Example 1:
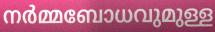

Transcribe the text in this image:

നർമ്മബോധവുമുള്ള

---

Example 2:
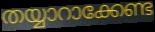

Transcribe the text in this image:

തയ്യാറാക്കേണ്ട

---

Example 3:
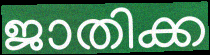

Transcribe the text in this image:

ജാതിക്ക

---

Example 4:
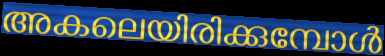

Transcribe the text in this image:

അകലെയിരിക്കുമ്പോൾ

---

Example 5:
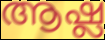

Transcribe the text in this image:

ആഷ്ല